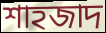
শাহজাদ